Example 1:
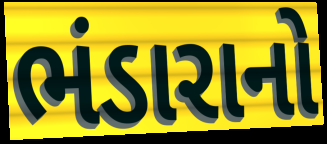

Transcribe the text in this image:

ભંડારાનો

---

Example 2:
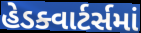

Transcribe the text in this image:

હેડક્વાર્ટર્સમાં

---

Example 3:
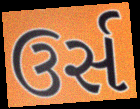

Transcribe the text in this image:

ઉર્સ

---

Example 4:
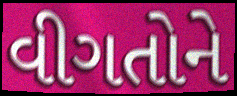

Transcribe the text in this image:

વીગતોને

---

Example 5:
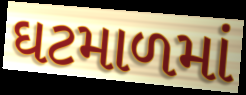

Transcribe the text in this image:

ઘટમાળમાં